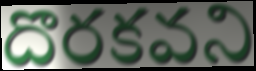
దొరకవని